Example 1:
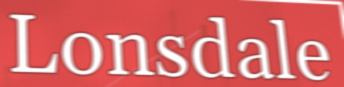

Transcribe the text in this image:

Lonsdale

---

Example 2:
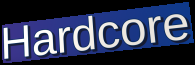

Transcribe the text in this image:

Hardcore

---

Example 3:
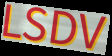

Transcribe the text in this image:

LSDV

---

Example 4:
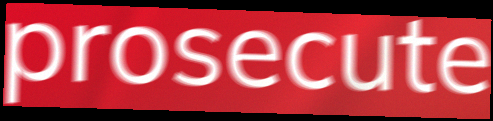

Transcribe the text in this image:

prosecute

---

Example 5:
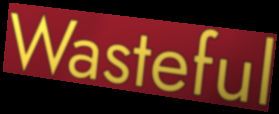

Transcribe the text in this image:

Wasteful